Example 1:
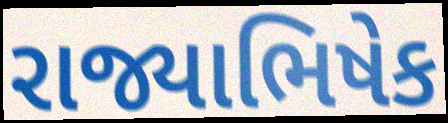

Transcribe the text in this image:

રાજ્યાભિષેક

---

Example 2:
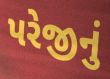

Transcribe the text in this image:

પરેજીનું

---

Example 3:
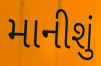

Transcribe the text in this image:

માનીશું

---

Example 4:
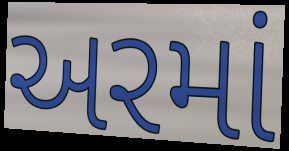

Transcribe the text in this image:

અરમાં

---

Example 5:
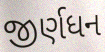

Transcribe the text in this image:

જીર્ણધન